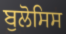
ਬੁਲੋਸਿਸ